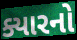
ક્યારનો